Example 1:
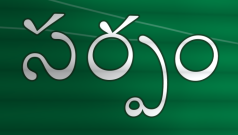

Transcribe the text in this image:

సర్పం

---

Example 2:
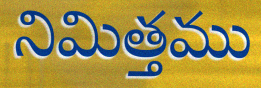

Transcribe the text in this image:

నిమిత్తము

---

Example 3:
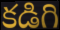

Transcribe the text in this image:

కడిగి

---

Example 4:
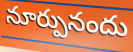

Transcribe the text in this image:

నూర్పునందు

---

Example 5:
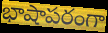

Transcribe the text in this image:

భాషాపరంగా